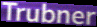
Trubner